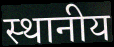
स्थानीय